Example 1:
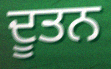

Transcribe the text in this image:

ਦੂਤਨ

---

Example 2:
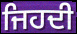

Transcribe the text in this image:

ਜਿਹਦੀ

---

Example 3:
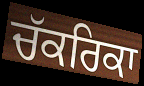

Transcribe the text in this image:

ਚੱਕਰਿਕਾ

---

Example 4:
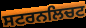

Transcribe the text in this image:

ਸਟਰਨਲਿਚਟ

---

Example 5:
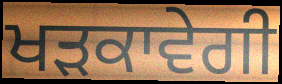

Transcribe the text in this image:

ਖੜਕਾਵੇਗੀ